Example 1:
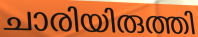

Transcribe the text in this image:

ചാരിയിരുത്തി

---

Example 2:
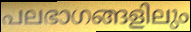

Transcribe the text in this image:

പലഭാഗങ്ങളിലും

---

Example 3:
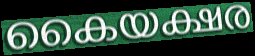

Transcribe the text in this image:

കൈയക്ഷര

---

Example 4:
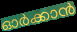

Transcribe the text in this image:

ഓർക്കാൻ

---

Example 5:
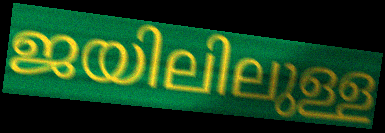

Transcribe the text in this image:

ജയിലിലുള്ള